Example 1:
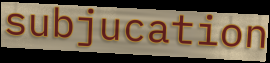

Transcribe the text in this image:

subjucation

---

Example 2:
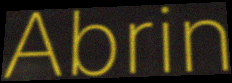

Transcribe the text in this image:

Abrin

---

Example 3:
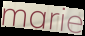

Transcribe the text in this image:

marie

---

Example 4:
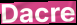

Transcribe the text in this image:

Dacre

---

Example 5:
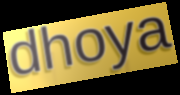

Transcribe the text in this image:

dhoya